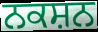
ਨਕਸ਼ਨ